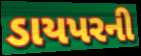
ડાયપરની